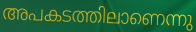
അപകടത്തിലാണെന്നു